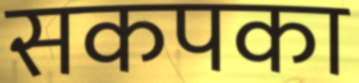
सकपका